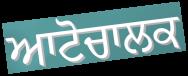
ਆਟੋਚਾਲਕ